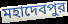
মহাদেবপুর